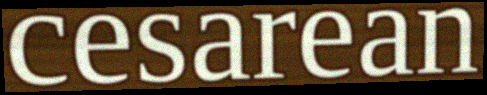
cesarean